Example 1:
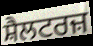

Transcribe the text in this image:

ਸ਼ੈਲਟਰਜ਼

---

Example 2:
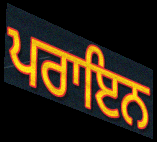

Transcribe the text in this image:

ਪਰਾਇਨ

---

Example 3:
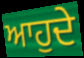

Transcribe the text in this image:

ਆਹੁਦੇ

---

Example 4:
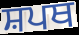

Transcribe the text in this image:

ਸ਼ਪਥ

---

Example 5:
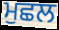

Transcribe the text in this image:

ਮੁਛਲ